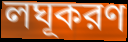
লঘূকরণ